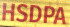
HSDPA